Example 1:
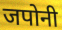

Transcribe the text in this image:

जपोनी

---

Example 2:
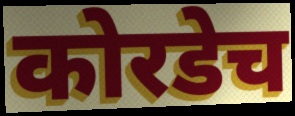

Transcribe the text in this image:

कोरडेच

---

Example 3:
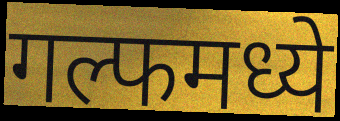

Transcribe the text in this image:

गल्फमध्ये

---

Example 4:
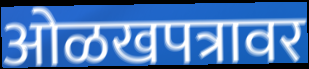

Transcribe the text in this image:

ओळखपत्रावर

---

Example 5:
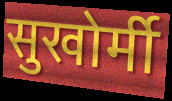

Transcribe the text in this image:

सुखोर्मी